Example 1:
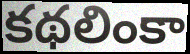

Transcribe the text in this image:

కథలింకా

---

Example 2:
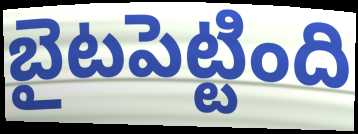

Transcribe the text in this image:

బైటపెట్టింది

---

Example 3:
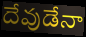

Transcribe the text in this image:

దేవుడేనా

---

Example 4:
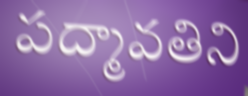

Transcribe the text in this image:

పద్మావతిని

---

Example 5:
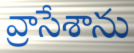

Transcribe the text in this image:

వ్రాసేశాను